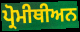
ਪ੍ਰੋਮੀਥੀਅਨ